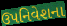
ઉપનિવેશના